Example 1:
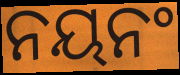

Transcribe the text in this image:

ନୟନଂ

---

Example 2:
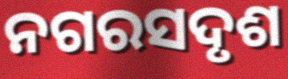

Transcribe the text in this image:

ନଗରସଦୃଶ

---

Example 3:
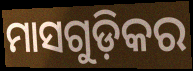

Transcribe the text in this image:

ମାସଗୁଡ଼ିକର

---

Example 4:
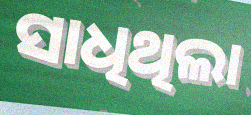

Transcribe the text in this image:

ସାଧିଥିଲା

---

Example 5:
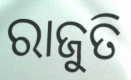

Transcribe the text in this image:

ରାଜୁତି